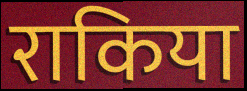
राकिया